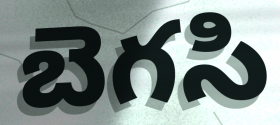
బెగసి